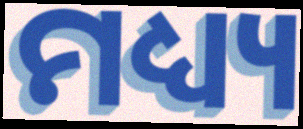
ମଧ୍ୟ୍ୟ